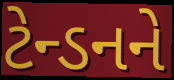
ટેન્ડનને